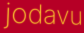
jodavu